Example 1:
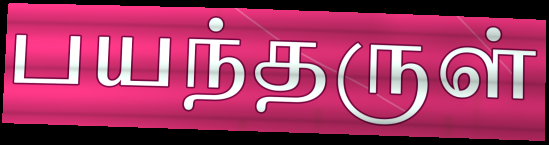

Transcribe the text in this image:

பயந்தருள்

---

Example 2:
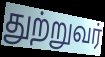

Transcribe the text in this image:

துற்றுவர்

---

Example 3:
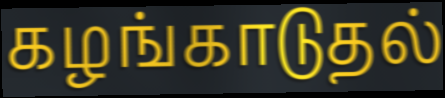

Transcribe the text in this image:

கழங்காடுதல்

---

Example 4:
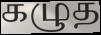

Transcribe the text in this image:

கழுத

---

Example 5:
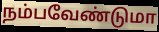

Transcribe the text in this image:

நம்பவேண்டுமா